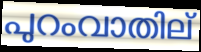
പുറംവാതില്